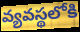
వ్యవస్థలోకి